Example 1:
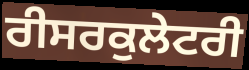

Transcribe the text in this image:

ਰੀਸਰਕੁਲੇਟਰੀ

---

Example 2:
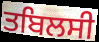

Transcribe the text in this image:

ਤਬਿਲਸੀ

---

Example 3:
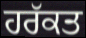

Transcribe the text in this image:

ਹਰੱਕਤ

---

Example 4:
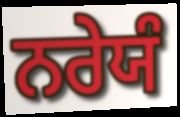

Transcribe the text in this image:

ਨਰੇਯੰ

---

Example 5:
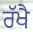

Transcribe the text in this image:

ਰੱਖੈ